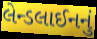
લેન્ડલાઈનનું